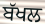
ਬੱਖਲ